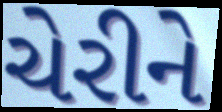
ચેરીને